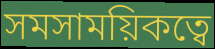
সমসাময়িকত্বে